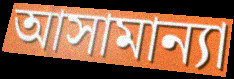
আসামান্যা